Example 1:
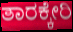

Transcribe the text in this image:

ತಾರಕ್ಕೇರಿ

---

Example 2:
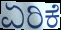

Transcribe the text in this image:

ಏರಿಕೆ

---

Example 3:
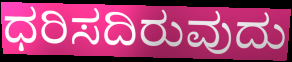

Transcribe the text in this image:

ಧರಿಸದಿರುವುದು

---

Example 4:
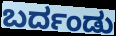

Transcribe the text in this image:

ಬರ್ದಂಡು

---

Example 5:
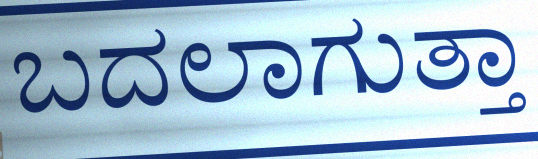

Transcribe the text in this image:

ಬದಲಾಗುತ್ತಾ